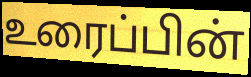
உரைப்பின்